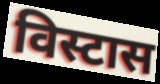
विस्टास